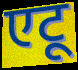
एटू